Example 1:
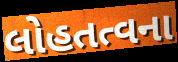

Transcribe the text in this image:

લોહતત્વના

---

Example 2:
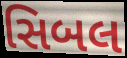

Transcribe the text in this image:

સિબલ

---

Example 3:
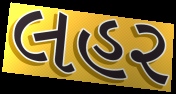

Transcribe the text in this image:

લહર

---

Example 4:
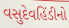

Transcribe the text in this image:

વસુદેવહિંડીનો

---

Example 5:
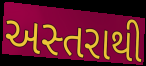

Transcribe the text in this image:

અસ્તરાથી